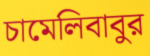
চামেলিবাবুর